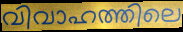
വിവാഹത്തിലെ